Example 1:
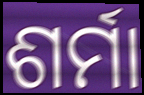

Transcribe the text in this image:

ଶର୍ମା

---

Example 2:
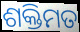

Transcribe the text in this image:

ଶକ୍ତିମତ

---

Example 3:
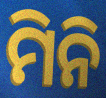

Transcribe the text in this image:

ମିନି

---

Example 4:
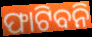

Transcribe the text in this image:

ଫାଟିବନି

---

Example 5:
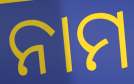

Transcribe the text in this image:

ନାମ